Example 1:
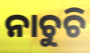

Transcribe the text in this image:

ନାଚୁଚି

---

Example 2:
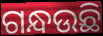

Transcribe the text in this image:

ଗନ୍ଧଉଛି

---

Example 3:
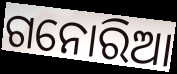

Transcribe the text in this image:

ଗନୋରିଆ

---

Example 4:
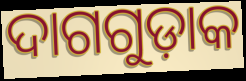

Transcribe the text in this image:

ଦାଗଗୁଡ଼ାକ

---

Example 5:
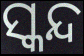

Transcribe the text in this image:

ସ୍କନ୍ଦ